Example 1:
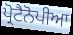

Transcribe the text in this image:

ਪ੍ਰੋਟੈਨੋਪੀਆ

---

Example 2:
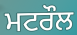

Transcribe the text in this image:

ਮਟਰੌਲ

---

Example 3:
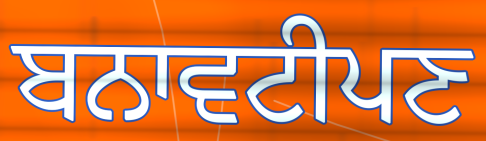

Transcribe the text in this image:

ਬਨਾਵਟੀਪਣ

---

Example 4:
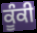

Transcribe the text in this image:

ਕੂੰਕੀ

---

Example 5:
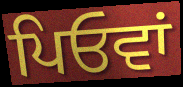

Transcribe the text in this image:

ਪਿਓਵਾਂ